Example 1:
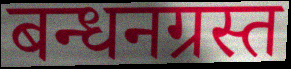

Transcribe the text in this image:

बन्धनग्रस्त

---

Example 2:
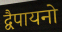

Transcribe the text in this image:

द्वैपायनो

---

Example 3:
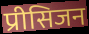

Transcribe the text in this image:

प्रीसिजन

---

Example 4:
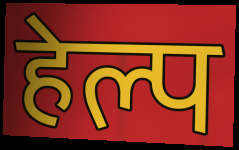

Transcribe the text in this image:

हेल्‍प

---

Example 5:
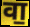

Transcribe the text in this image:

वा॒